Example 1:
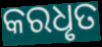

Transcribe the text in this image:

କରଧୃତ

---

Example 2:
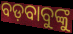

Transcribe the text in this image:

ବଡ଼ବାବୁଙ୍କୁ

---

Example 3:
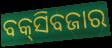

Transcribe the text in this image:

ବକ୍‍ସିବଜାର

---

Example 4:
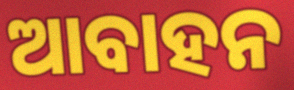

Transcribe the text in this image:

ଆବାହନ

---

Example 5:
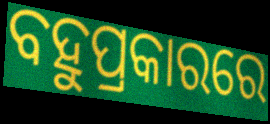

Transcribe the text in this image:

ବହୁପ୍ରକାରରେ